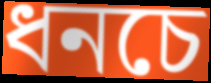
ধনচে